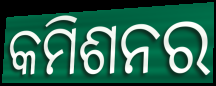
କମିଶନର